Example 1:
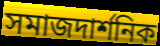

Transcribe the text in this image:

সমাজদার্শনিক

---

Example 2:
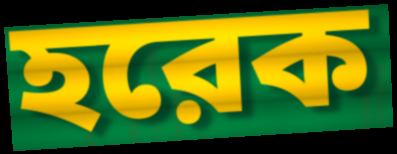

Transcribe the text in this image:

হরেক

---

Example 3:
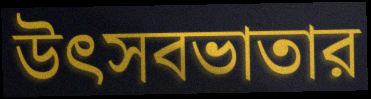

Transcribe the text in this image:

উৎসবভাতার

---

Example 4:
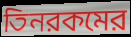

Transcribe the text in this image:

তিনরকমের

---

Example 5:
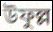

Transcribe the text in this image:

উফুল্ল